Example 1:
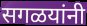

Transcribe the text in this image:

सगळयांनी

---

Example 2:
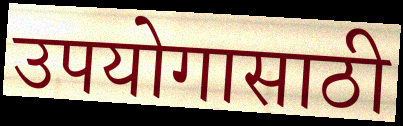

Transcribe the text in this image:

उपयोगासाठी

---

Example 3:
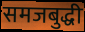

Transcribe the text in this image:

समजबुद्धी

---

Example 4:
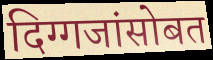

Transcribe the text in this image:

दिग्गजांसोबत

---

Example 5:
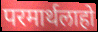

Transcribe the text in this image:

परमार्थलाहो